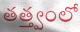
తత్త్వంలో